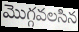
మొగ్గవలసిన